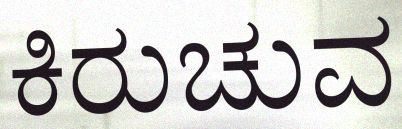
ಕಿರುಚುವ